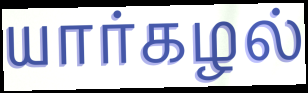
யார்கழல்